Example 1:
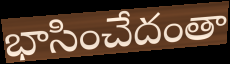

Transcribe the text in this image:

భాసించేదంతా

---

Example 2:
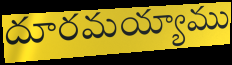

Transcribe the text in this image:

దూరమయ్యాము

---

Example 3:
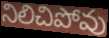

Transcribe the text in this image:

నిలిచిపోవు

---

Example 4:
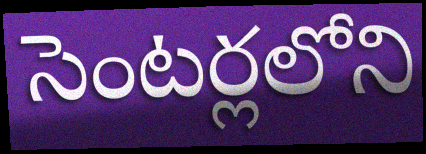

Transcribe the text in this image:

సెంటర్లలోని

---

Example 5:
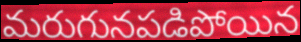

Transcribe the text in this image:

మరుగునపడిపోయిన